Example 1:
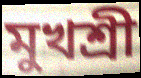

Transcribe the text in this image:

মুখশ্রী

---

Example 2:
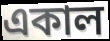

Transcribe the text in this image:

একাল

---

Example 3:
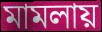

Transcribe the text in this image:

মামলায়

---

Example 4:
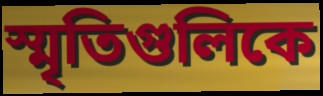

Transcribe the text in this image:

স্মৃতিগুলিকে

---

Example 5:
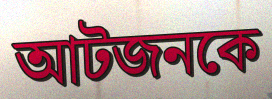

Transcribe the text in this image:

আটজনকে